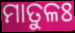
ମାତୁଳଃ